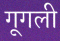
गूगली